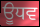
ਊਧਵ